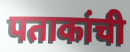
पताकांची